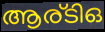
ആര്ടിഒ